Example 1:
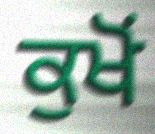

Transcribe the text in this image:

ਕੁਖੋਂ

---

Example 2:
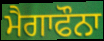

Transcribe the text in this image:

ਮੈਗਾਫੌਨਾ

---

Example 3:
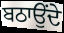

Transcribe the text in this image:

ਬਠਾਉਂਦੇ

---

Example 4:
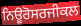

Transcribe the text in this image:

ਨਿਊਰੋਸਰਜੀਕਲ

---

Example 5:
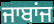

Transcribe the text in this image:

ਜਾਬਾਂਜ